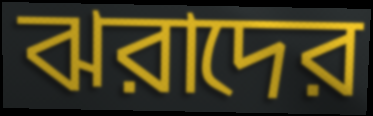
ঝরাদের